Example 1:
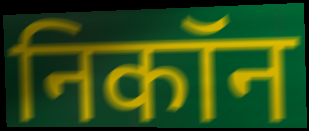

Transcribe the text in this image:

निकॉन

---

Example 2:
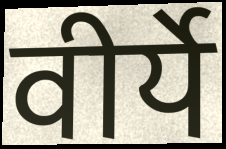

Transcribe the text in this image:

वीर्ये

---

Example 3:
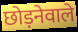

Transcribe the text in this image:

छोड़नेवाले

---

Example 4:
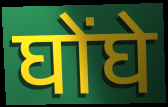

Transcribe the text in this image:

घोंघे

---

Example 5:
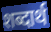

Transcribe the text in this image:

शब्दार्थ